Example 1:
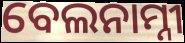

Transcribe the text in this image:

ବେଲନାମ୍ନୀ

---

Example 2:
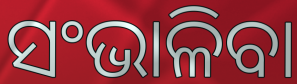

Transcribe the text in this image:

ସଂଭାଳିବା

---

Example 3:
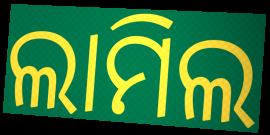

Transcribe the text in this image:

ଲାମିଲ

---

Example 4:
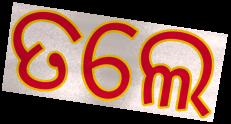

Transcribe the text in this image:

ତଲେ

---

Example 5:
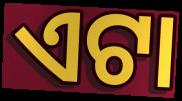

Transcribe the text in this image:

ଏଟା